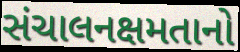
સંચાલનક્ષમતાનો